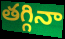
తగ్గినా